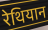
रेथियान